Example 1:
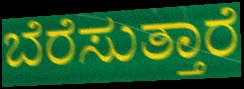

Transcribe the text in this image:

ಬೆರೆಸುತ್ತಾರೆ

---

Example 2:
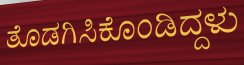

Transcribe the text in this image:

ತೊಡಗಿಸಿಕೊಂಡಿದ್ದಳು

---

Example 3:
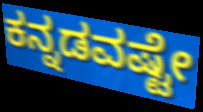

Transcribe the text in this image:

ಕನ್ನಡವಷ್ಟೇ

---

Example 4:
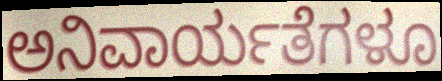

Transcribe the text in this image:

ಅನಿವಾರ್ಯತೆಗಳೂ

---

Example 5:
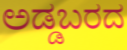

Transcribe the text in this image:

ಅಡ್ಡಬರದ